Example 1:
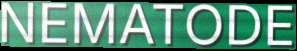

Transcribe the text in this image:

NEMATODE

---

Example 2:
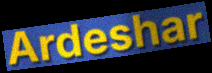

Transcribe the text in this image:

Ardeshar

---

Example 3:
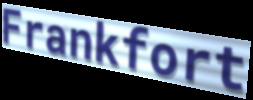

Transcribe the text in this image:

Frankfort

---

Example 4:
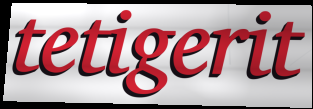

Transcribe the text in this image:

tetigerit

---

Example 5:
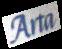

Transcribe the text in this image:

Arta